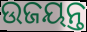
ଉଜୟନ୍ତ